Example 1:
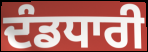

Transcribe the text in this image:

ਦੰਡਧਾਰੀ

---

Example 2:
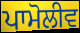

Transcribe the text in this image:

ਪਾਮੋਲੀਵ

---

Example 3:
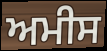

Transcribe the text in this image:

ਅਮੀਸ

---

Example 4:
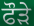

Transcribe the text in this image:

ਫੌੜੇ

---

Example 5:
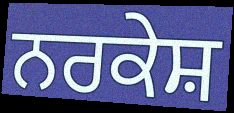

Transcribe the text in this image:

ਨਰਕੇਸ਼